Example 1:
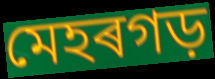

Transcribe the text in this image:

মেহৰগড়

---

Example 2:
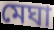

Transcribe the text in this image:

মেঘা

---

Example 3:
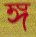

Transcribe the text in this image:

ঙ্গ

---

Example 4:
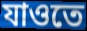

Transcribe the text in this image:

যাওতে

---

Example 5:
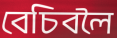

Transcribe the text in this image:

বেচিবলৈ